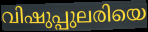
വിഷുപ്പുലരിയെ